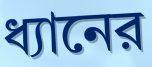
ধ্যানের